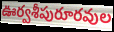
ఊర్వశీపురూరవుల